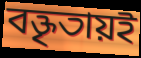
বক্তৃতায়ই